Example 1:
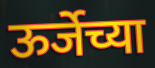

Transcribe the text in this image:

ऊर्जेच्या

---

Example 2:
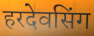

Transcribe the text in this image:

हरदेवसिंग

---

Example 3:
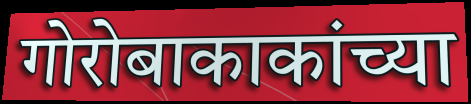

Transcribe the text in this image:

गोरोबाकाकांच्या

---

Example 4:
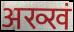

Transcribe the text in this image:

अख्खं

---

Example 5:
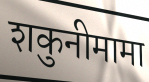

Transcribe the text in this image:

शकुनीमामा